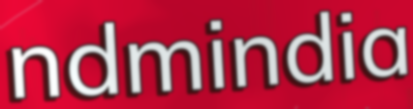
ndmindia